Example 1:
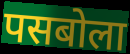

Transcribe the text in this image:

पसबोला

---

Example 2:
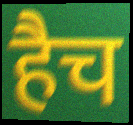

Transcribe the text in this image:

हैच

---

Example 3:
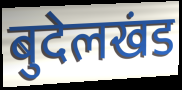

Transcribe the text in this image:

बुदेलखंड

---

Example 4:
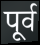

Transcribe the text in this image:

पूर्व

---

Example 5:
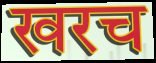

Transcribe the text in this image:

खरच